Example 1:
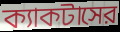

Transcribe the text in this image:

ক্যাকটাসের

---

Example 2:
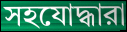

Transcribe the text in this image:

সহযোদ্ধারা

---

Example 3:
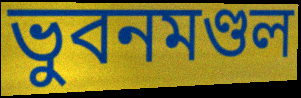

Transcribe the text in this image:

ভুবনমণ্ডল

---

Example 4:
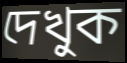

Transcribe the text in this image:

দেখুক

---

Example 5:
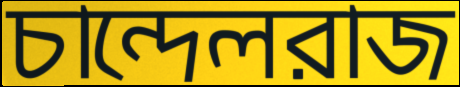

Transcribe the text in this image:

চান্দেলরাজ